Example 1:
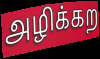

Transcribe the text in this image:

அழிக்கற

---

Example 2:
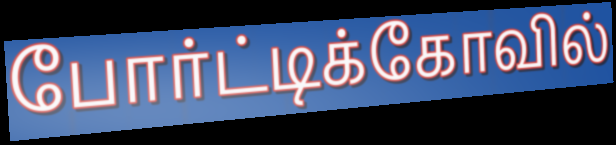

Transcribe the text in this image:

போர்ட்டிக்கோவில்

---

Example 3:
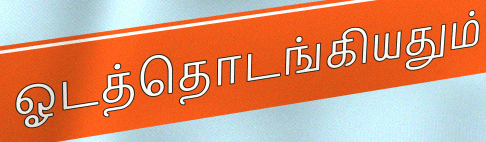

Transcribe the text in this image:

ஓடத்தொடங்கியதும்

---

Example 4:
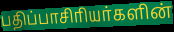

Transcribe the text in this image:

பதிப்பாசிரியர்களின்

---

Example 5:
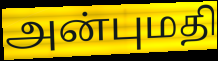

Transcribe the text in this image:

அன்புமதி